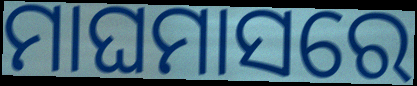
ମାଘମାସରେ